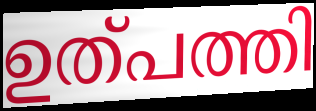
ഉത്പത്തി